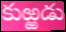
కుఱ్ఱడు